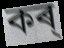
কৰ্